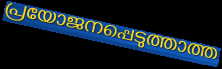
പ്രയോജനപ്പെടുത്താത്ത